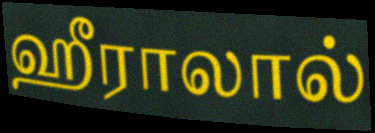
ஹீராலால்